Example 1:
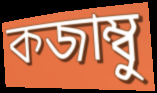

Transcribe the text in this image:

কজাম্বু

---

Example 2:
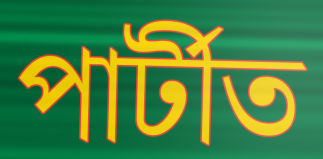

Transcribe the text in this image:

পাৰ্টীত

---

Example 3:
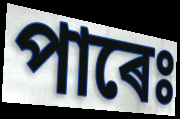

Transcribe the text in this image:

পাৰেঃ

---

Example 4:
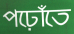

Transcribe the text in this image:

পঢ়োঁতে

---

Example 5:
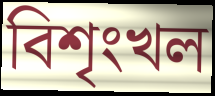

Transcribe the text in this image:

বিশৃংখল